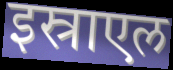
इस्राएल